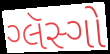
ગ્લૅસ્ગો